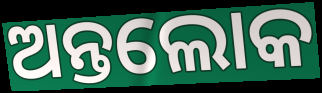
ଅନ୍ତଲୋକ